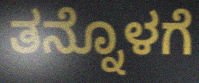
ತನ್ನೊಳಗೆ